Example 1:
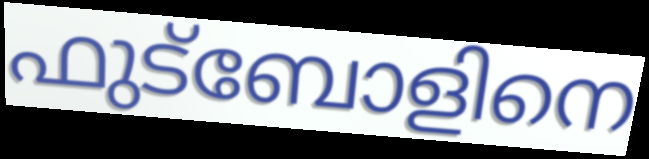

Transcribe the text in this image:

ഫുട്ബോളിനെ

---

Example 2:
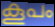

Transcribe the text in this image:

കൂപം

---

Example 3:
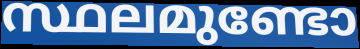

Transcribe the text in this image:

സ്ഥലമുണ്ടോ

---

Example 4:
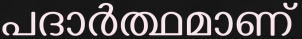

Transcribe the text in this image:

പദാർത്ഥമാണ്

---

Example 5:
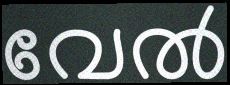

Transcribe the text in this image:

വേൽ